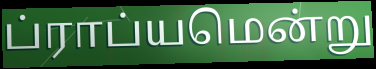
ப்ராப்யமென்று